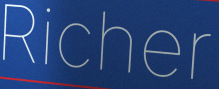
Richer